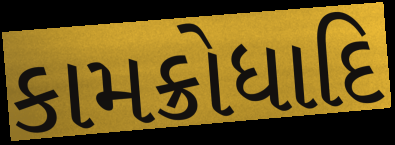
કામક્રોધાદિ